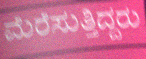
ಮೆರೆಸುತ್ತಿದ್ದರು